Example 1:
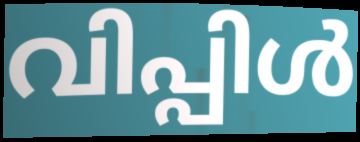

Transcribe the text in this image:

വിപ്പിൾ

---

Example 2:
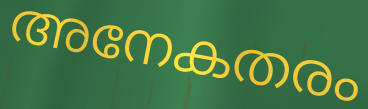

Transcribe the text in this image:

അനേകതരം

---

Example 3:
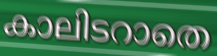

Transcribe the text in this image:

കാലിടറാതെ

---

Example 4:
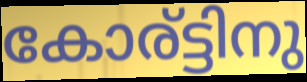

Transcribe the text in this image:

കോര്ട്ടിനു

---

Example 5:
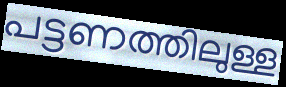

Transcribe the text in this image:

പട്ടണത്തിലുള്ള